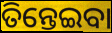
ତିନ୍ତେଇବା